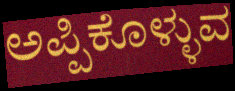
ಅಪ್ಪಿಕೊಳ್ಳುವ